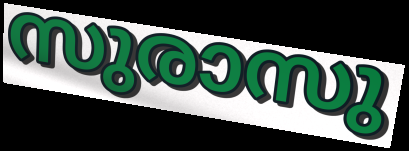
സുരാസു